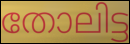
തോലിട്ട